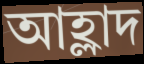
আহ্লাদ